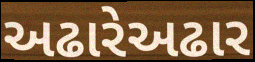
અઢારેઅઢાર